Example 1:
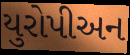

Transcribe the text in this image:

યુરોપીઅન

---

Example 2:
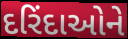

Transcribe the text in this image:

દરિંદાઓને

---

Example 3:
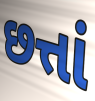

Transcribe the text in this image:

છત્તાં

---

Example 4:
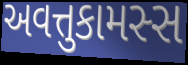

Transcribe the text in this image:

અવત્તુકામસ્સ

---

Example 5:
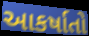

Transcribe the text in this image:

આકર્ષાતો